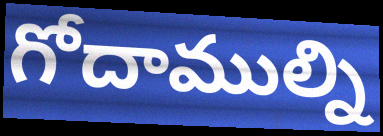
గోదాముల్ని